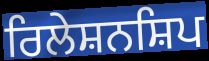
ਰਿਲੇਸ਼ਨਸ਼ਿਪ